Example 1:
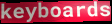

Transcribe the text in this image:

keyboards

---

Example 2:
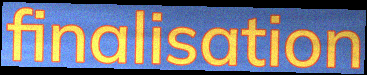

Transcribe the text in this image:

finalisation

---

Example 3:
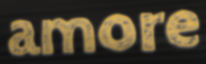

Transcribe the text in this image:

amore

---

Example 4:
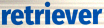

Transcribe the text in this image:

retriever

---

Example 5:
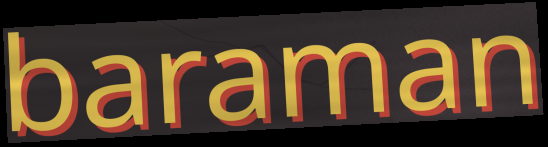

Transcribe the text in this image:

baraman